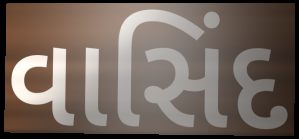
વાસિંદ